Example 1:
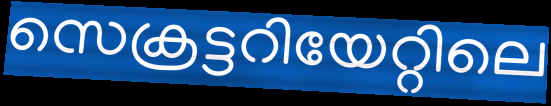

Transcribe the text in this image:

സെക്രട്ടറിയേറ്റിലെ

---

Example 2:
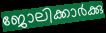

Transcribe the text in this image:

ജോലിക്കാർക്കു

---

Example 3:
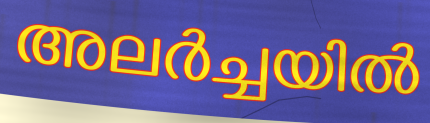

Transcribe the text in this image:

അലർച്ചയിൽ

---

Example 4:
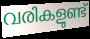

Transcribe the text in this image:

വരികളുണ്ട്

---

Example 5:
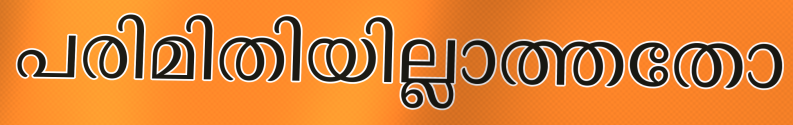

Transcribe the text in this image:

പരിമിതിയില്ലാത്തതോ